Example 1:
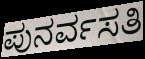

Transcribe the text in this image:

ಪುನರ್ವಸತಿ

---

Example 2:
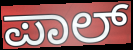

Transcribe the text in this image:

ಪಾಲ್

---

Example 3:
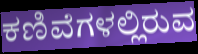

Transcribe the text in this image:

ಕಣಿವೆಗಳಲ್ಲಿರುವ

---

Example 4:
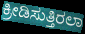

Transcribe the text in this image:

ಕ್ರೀಡಿಸುತ್ತಿರಲಾ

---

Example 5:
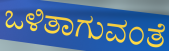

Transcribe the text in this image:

ಒಳಿತಾಗುವಂತೆ